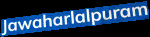
Jawaharlalpuram